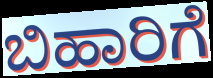
ಬಿಹಾರಿಗೆ